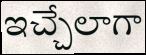
ఇచ్చేలాగా